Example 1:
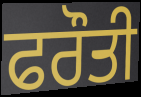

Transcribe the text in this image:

ਫਰੌਤੀ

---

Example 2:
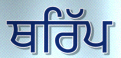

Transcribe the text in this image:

ਥਰਿੱਪ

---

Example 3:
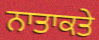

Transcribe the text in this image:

ਨਾਤਾਕਤੇ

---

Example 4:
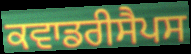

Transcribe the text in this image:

ਕਵਾਡਰੀਸੈਪਸ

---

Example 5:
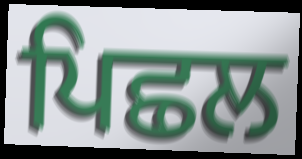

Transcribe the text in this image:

ਪਿਛਲ